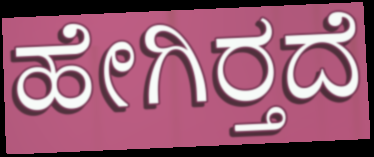
ಹೇಗಿರ್‍ತದೆ